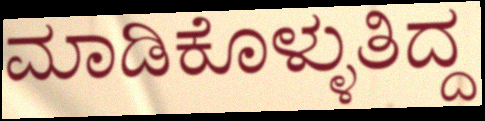
ಮಾಡಿಕೊಳ್ಳುತಿದ್ದ